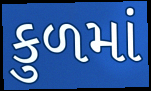
કુળમાં